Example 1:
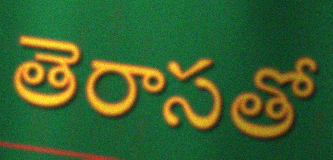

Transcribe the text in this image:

తెరాసతో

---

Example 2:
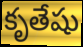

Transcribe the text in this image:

కృతేషు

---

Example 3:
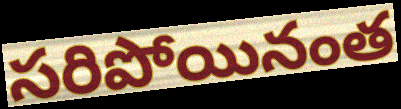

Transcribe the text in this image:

సరిపోయినంత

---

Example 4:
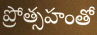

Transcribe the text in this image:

ప్రోత్సహంతో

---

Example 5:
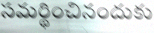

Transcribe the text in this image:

సమర్థించినందుకు